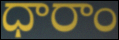
ధారాం